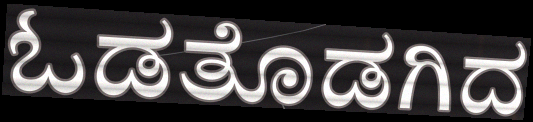
ಓಡತೊಡಗಿದ